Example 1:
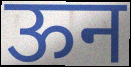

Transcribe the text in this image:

ऊन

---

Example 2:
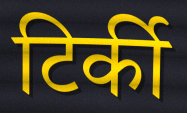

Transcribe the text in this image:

टिर्की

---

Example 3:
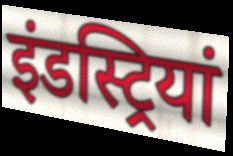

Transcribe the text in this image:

इंडस्ट्रियां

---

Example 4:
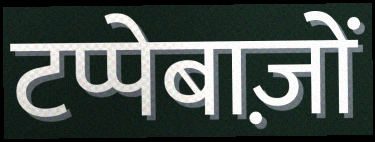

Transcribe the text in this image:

टप्पेबाज़ों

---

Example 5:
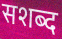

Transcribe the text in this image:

सशब्द